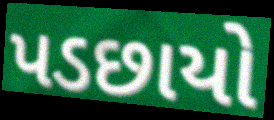
પડછાયો